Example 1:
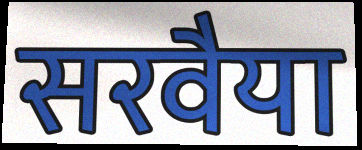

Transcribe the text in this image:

सरवैया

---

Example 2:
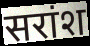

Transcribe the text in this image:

सरांश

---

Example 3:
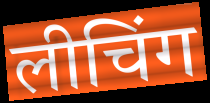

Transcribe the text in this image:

लीचिंग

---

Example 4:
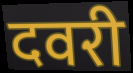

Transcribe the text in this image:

दवरी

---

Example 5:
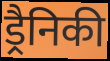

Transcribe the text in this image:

ड्रैनिकी